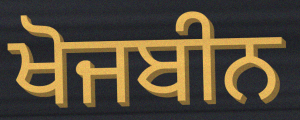
ਖੋਜਬੀਨ